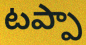
టప్పా